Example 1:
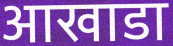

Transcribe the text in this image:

आखाडा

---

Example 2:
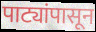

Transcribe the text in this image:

पाट्यांपासून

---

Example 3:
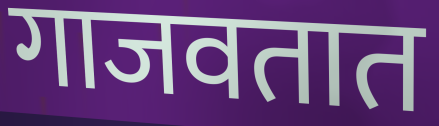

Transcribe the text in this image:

गाजवतात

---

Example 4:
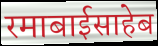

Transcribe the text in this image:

रमाबाईसाहेब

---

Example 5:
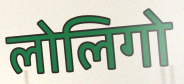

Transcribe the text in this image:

लोलिगो